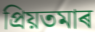
প্ৰিয়তমাৰ